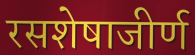
रसशेषाजीर्ण